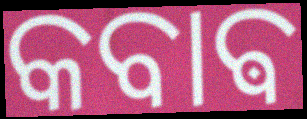
କବାଵ